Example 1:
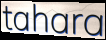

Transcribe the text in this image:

tahara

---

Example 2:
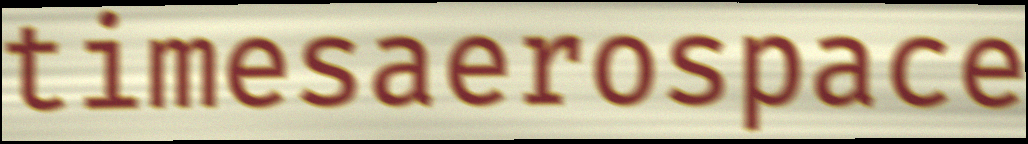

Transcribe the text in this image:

timesaerospace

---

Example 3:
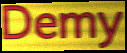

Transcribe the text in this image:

Demy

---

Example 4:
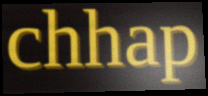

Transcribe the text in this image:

chhap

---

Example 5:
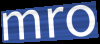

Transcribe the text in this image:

mro